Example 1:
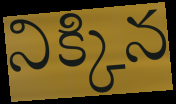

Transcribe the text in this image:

నిక్కిన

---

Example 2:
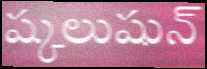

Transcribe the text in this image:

ష్కలుషున్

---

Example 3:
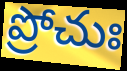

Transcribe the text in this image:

ప్రోచుః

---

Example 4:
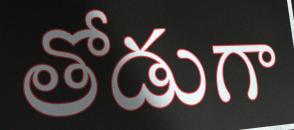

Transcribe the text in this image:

తోడుగా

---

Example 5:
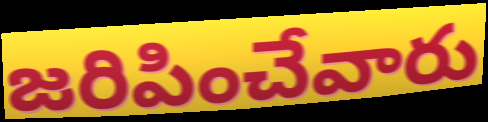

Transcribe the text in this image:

జరిపించేవారు